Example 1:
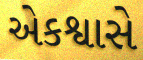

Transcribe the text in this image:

એકશ્વાસે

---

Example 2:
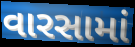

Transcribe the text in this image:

વારસામાં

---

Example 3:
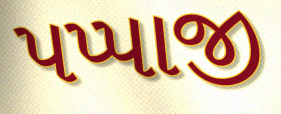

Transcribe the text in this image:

પપ્પાજી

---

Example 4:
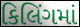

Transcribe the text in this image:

કિલિંગમાં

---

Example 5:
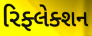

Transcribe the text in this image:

રિફ્લેક્શન